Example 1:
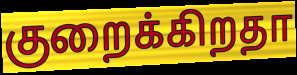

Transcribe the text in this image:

குறைக்கிறதா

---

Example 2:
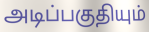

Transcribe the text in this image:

அடிப்பகுதியும்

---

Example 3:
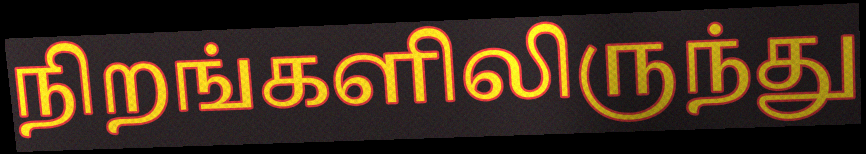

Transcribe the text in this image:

நிறங்களிலிருந்து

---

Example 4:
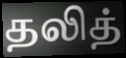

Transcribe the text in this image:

தலித்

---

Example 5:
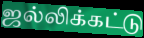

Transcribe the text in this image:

ஜல்லிக்கட்டு